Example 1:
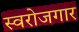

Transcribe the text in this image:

स्‍वरोजगार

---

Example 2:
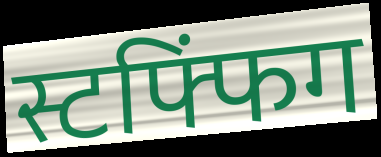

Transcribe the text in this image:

स्टफ्फिंग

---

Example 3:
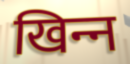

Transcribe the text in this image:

खिन्‍न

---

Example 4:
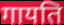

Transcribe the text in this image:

गायति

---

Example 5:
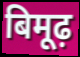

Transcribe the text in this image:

बिमूढ़